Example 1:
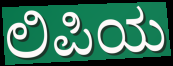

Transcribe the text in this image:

ಲಿಪಿಯ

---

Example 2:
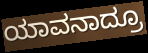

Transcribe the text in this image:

ಯಾವನಾದ್ರೂ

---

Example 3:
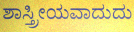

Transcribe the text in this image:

ಶಾಸ್ತ್ರೀಯವಾದುದು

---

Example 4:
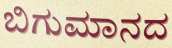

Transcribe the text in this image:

ಬಿಗುಮಾನದ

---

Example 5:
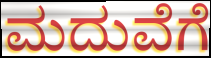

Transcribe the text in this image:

ಮದುವೆಗೆ